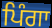
ਪਿੰਗਾ